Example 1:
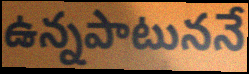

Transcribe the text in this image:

ఉన్నపాటుననే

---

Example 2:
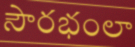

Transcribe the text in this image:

సౌరభంలా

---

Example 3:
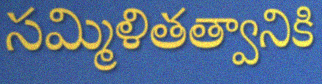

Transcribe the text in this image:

సమ్మిళితత్వానికి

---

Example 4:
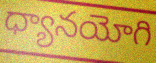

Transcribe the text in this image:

ధ్యానయోగి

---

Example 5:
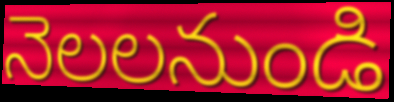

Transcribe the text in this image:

నెలలనుండి